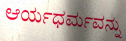
ಆರ್ಯಧರ್ಮವನ್ನು